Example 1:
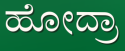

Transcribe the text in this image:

ಹೋದ್ರಾ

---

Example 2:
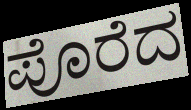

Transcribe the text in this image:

ಪೊರೆದ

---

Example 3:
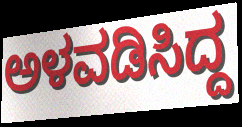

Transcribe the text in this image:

ಅಳವಡಿಸಿದ್ದ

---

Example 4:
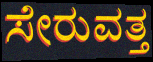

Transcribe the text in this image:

ಸೇರುವತ್ತ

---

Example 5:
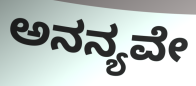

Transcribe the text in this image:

ಅನನ್ಯವೇ